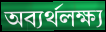
অব্যর্থলক্ষ্য